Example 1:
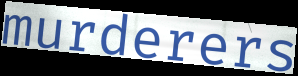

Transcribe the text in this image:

murderers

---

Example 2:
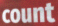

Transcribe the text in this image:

count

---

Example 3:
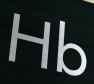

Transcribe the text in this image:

Hb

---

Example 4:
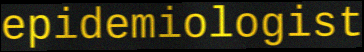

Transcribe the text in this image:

epidemiologist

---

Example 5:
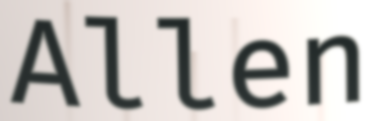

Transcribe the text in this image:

Allen